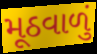
મૂઠવાળું